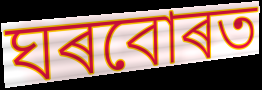
ঘৰবোৰত